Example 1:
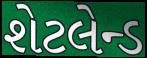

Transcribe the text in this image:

શેટલેન્ડ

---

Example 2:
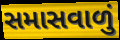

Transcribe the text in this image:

સમાસવાળું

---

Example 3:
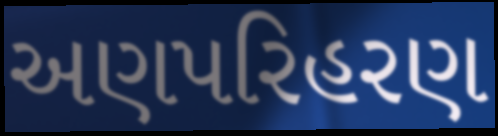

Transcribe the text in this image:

અણપરિહરણ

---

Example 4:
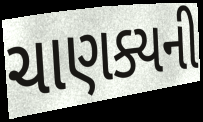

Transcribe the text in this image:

ચાણક્યની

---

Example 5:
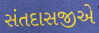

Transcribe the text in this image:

સંતદાસજીએ